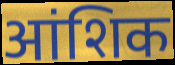
आंशिक